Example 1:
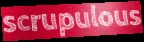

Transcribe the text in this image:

scrupulous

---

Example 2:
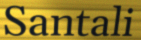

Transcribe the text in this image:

Santali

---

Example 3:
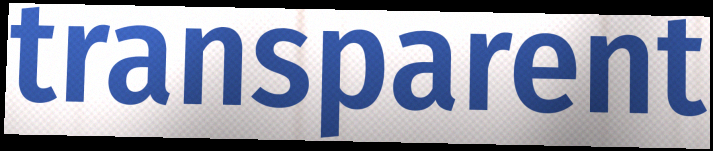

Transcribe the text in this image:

transparent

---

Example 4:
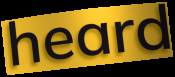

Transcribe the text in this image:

heard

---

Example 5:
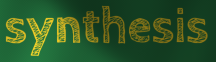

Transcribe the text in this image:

synthesis